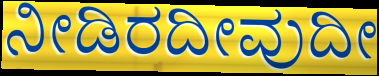
ನೀಡಿರದೀವುದೀ